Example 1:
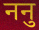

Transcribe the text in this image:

ननु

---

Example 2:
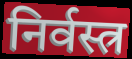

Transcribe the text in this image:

निर्वस्‍त्र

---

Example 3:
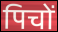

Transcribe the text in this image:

पिचों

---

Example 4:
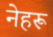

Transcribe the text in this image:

नेहरू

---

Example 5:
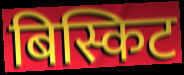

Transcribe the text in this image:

बिस्किट